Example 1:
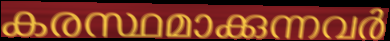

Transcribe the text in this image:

കരസ്ഥമാക്കുന്നവർ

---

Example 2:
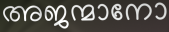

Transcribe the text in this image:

അജന്മാനോ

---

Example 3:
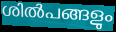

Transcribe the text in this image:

ശിൽപങ്ങളും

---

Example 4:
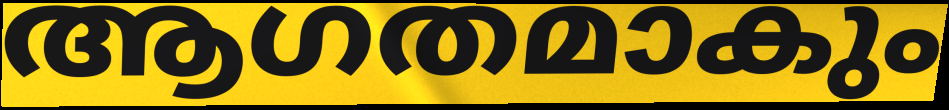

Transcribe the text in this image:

ആഗതമാകും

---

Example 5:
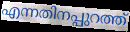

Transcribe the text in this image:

എന്നതിനപ്പുറത്ത്